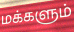
மக்களும்